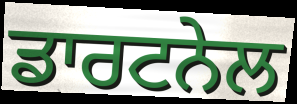
ਡਾਰਟਨੇਲ